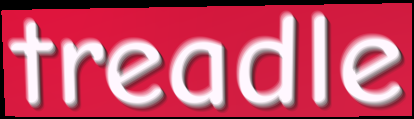
treadle